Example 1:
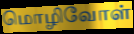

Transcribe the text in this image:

மொழிவோள்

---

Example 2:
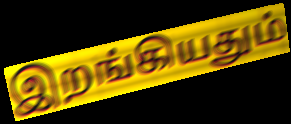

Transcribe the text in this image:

இறங்கியதும்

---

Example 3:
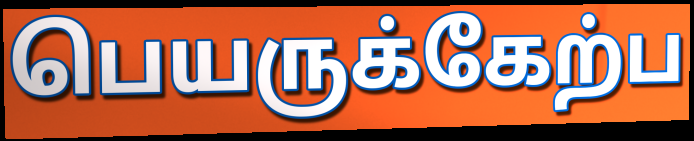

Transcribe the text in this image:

பெயருக்கேற்ப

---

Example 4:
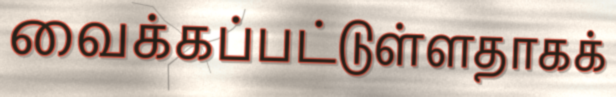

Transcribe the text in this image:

வைக்கப்பட்டுள்ளதாகக்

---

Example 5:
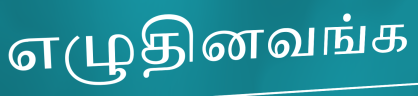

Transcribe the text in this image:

எழுதினவங்க